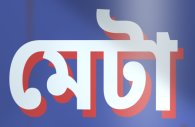
মেটা